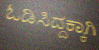
ಓಡಿಸಿದ್ದಕ್ಕಾಗಿ